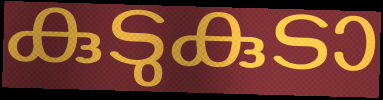
കുടുകുടാ